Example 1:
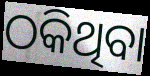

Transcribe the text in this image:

ଠକିଥିବା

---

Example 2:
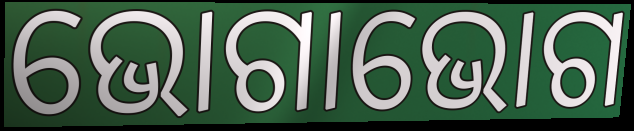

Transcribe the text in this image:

ଭୋଗାଭୋଗ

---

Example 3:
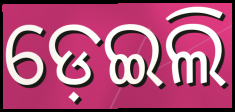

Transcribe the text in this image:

ଡ଼େଇଲି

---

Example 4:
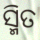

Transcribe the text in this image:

ସ୍ମିତ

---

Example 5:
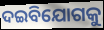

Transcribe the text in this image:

ଦଇବିଯୋଗକୁ